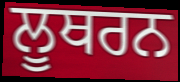
ਲੂਥਰਨ